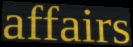
affairs